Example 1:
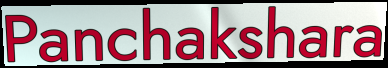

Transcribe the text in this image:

Panchakshara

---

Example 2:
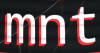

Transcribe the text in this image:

mnt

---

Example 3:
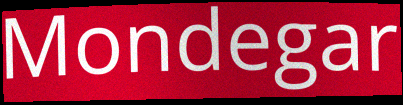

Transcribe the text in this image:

Mondegar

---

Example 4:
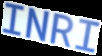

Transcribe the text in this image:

INRI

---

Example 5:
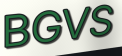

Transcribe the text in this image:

BGVS